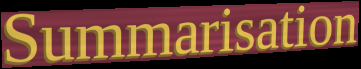
Summarisation